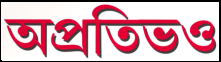
অপ্রতিভও